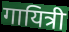
गायित्री